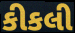
કીકલી